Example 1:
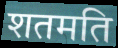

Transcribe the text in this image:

शतमति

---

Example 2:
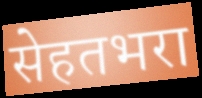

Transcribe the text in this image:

सेहतभरा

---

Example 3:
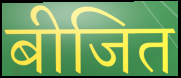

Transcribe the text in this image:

बीजित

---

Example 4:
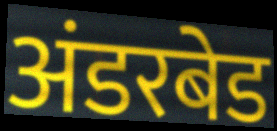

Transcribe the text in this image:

अंडरबेड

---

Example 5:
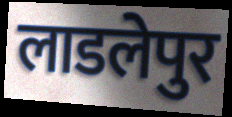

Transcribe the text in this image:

लाडलेपुर